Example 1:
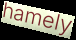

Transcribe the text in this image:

hamely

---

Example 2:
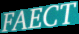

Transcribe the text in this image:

FAECT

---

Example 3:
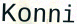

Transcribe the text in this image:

Konni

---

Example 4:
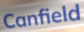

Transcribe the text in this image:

Canfield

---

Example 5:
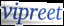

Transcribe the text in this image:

vipreet